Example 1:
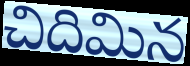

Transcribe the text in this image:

చిదిమిన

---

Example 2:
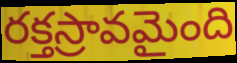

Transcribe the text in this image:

రక్తస్రావమైంది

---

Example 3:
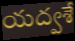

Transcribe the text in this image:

యద్వశే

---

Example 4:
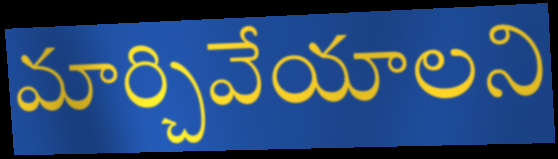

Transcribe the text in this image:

మార్చివేయాలని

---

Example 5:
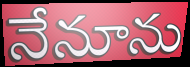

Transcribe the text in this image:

నేనూను